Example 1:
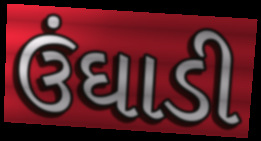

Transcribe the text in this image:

ઉંઘાડી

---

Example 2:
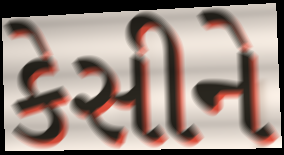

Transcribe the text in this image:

કેસીને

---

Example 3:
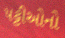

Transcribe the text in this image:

પટ્ટીઓનો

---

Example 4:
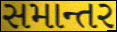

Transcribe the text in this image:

સમાન્તર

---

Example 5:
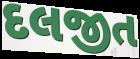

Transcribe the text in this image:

દલજીત